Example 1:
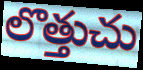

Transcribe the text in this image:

లొత్తుచు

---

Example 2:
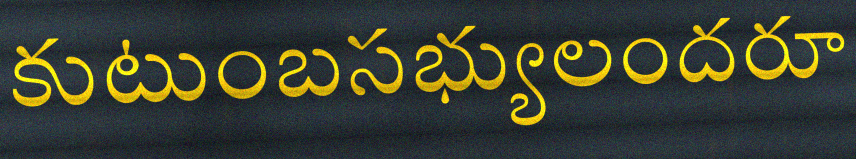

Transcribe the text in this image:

కుటుంబసభ్యులందరూ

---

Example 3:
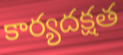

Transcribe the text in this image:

కార్యదక్షత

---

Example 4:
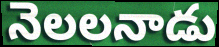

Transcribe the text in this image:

నెలలనాడు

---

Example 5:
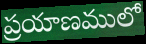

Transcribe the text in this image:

ప్రయాణములో